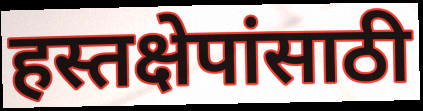
हस्तक्षेपांसाठी